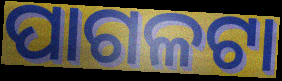
ପାଗଳଟା